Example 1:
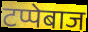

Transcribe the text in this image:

टप्पेबाज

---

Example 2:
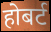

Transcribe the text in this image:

होबर्ट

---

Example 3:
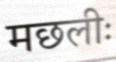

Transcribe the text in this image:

मछलीः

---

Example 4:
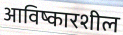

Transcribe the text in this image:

आविष्कारशील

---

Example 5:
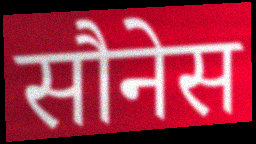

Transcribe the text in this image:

सौनेस